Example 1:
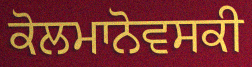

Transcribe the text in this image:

ਕੋਲਮਾਨੋਵਸਕੀ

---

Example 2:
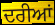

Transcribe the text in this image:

ਦਰੀਆਂ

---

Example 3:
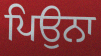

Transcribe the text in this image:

ਪਿਉਨਾ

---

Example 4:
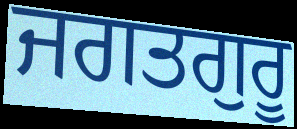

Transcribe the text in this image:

ਜਗਤਗੁਰੂ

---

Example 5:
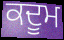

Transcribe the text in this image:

ਕਦੂਮ